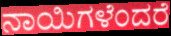
ನಾಯಿಗಳೆಂದರೆ